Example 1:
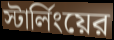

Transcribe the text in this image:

স্টার্লিংয়ের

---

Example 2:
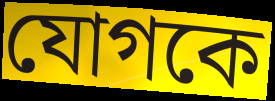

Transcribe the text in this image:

যোগকে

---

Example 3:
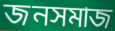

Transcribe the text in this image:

জনসমাজ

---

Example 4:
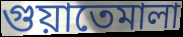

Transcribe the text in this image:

গুয়াতেমালা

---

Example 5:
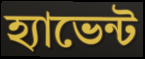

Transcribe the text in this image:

হ্যাভেন্ট